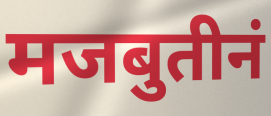
मजबुतीनं